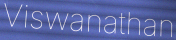
Viswanathan